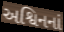
અશ્વિનનાં